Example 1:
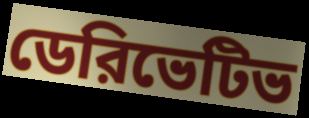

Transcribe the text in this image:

ডেরিভেটিভ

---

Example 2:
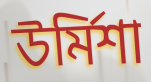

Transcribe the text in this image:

উর্মিশা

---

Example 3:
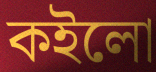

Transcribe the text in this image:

কইলো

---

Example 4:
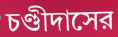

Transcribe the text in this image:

চণ্ডীদাসের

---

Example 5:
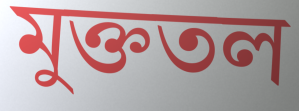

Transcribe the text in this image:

মুক্ততল